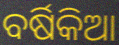
ବର୍ଷିକିଆ